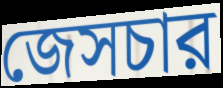
জেসচার